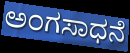
ಅಂಗಸಾಧನೆ